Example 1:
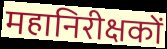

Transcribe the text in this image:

महानिरीक्षकों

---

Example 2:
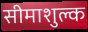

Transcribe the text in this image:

सीमाशुल्क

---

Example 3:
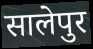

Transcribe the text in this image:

सालेपुर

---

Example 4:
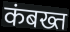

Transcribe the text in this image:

कंबख्त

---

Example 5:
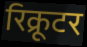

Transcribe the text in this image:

रिक्रूटर